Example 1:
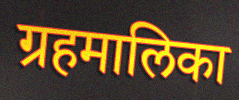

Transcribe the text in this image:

ग्रहमालिका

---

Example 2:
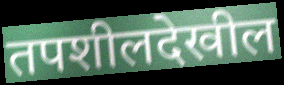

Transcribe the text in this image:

तपशीलदेखील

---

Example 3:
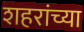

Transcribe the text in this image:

शहरांच्या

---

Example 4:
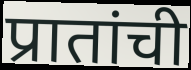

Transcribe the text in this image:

प्रातांची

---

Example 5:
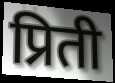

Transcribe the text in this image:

प्रिती